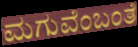
ಮಗುವೆಂಬಂತೆ